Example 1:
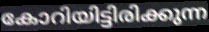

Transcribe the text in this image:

കോറിയിട്ടിരിക്കുന്ന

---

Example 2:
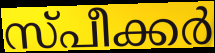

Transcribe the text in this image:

സ്പീക്കർ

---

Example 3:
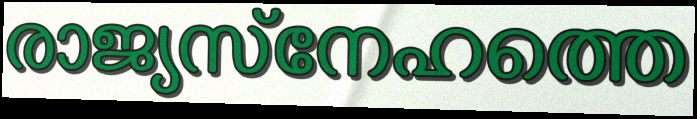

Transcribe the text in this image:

രാജ്യസ്‌നേഹത്തെ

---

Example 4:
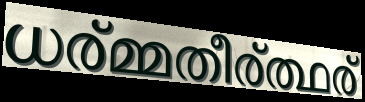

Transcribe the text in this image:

ധര്മ്മതീര്ത്ഥര്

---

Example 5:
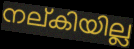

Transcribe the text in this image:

നല്കിയില്ല